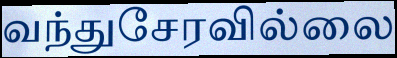
வந்துசேரவில்லை